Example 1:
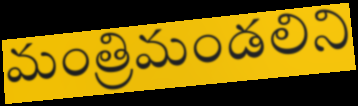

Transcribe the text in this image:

మంత్రిమండలిని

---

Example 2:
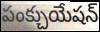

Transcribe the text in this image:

పంక్చుయేషన్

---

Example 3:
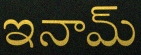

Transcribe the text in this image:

ఇనామ్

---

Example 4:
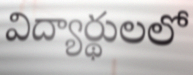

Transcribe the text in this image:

విద్యార్థులలో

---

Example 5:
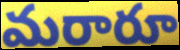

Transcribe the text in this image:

మరారూ